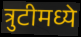
त्रुटीमध्ये